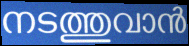
നടത്തുവാൻ